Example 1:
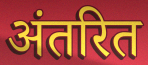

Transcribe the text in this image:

अंतरित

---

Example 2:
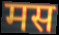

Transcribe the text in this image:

मस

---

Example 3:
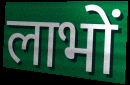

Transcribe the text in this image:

लाभों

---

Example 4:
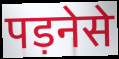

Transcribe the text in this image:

पड़नेसे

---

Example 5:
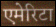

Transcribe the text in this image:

एमेरिटा